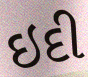
ઇદી